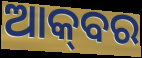
ଆକ୍‌ବର